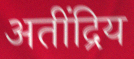
अतींद्रिय